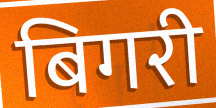
बिगरी